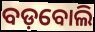
ବଡ଼ବୋଲି